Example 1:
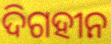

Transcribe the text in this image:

ଦିଗହୀନ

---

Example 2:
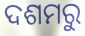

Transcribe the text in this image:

ଦଶମରୁ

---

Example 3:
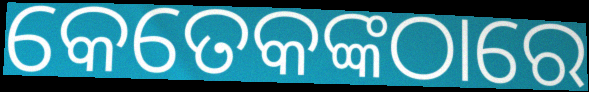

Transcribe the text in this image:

କେତେକଙ୍କଠାରେ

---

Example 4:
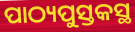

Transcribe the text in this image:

ପାଠ୍ୟପୁସ୍ତକସ୍ଥ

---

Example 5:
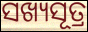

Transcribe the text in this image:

ସଖ୍ୟସୂତ୍ର